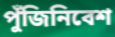
পুঁজিনিবেশ